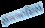
ਲੁਕਆਇਲ